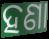
ହଣା